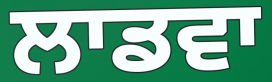
ਲਾਡਵਾ